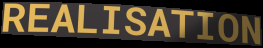
REALISATION